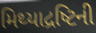
મિથ્યાદ્રષ્ટિની